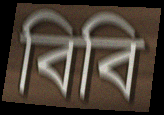
বিবি